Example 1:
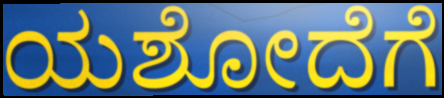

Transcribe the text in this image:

ಯಶೋದೆಗೆ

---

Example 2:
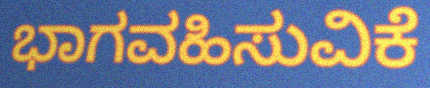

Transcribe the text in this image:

ಭಾಗವಹಿಸುವಿಕೆ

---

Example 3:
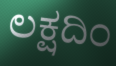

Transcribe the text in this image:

ಲಕ್ಷದಿಂ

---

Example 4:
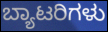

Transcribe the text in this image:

ಬ್ಯಾಟರಿಗಳು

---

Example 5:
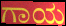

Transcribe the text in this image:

ಗಾಯ